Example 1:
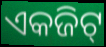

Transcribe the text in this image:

ଏକଜିଟ୍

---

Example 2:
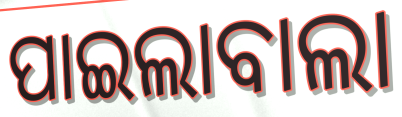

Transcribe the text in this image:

ପାଇଲାବାଲା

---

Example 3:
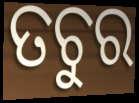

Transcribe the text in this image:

ତଚୁର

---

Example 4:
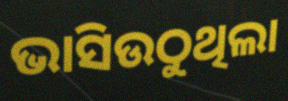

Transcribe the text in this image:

ଭାସିଉଠୁଥିଲା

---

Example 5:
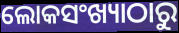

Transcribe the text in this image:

ଲୋକସଂଖ୍ୟାଠାରୁ